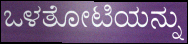
ಒಳತೋಟಿಯನ್ನು